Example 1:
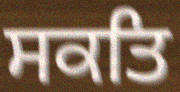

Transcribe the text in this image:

ਸਕਤਿ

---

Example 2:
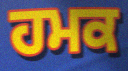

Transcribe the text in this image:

ਹਮਕ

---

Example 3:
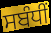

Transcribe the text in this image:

ਸਬੰਧੀਂ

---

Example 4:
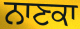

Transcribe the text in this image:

ਨਾਣਕਾ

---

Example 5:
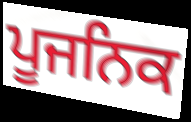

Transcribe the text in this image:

ਪੂਜਨਿਕ